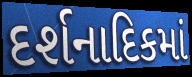
દર્શનાદિકમાં